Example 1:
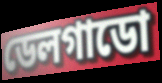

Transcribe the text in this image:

ডেলগাডো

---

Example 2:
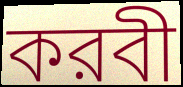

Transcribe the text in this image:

করবী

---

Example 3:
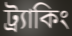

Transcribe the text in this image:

ট্র্যাকিং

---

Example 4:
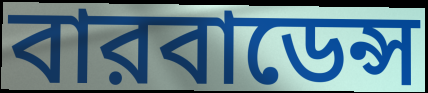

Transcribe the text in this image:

বারবাডেন্স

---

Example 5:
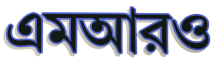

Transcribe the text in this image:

এমআরও